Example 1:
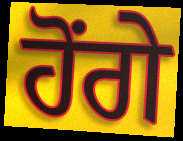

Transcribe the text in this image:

ਹੋਂਗੇ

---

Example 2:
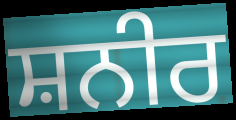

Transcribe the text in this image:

ਸ਼ਨੀਰ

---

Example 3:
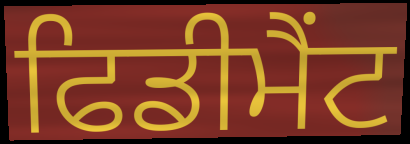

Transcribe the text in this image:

ਫਿਡੀਮੈਂਟ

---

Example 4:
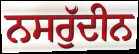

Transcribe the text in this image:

ਨਸਰੁੱਦੀਨ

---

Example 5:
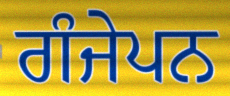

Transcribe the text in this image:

ਗੰਜੇਪਨ